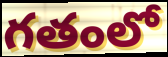
గతంలో